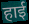
हाई